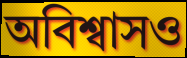
অবিশ্বাসও